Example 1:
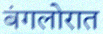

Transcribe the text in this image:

बंगलोरात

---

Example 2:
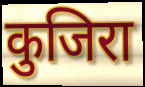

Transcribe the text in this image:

कुजिरा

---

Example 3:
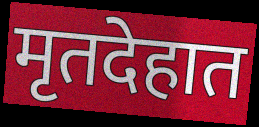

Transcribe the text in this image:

मृतदेहात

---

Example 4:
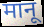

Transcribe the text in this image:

मानू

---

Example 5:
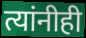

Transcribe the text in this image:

त्यांनीही